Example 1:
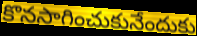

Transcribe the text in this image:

కొనసాగించుకునేందుకు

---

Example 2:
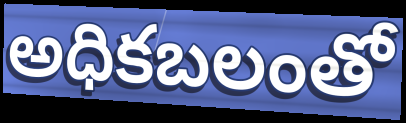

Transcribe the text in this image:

అధికబలంతో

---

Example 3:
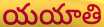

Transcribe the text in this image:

యయాతి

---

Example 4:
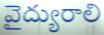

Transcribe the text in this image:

వైద్యురాలి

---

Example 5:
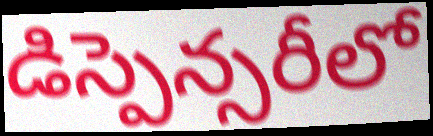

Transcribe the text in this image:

డిస్పెన్సరీలో